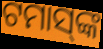
ଟମାସ୍‌ଙ୍କ